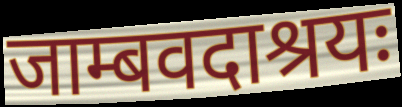
जाम्बवदाश्रयः